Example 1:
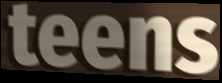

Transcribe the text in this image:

teens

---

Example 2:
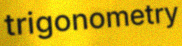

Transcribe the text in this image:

trigonometry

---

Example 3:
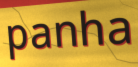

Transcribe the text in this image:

panha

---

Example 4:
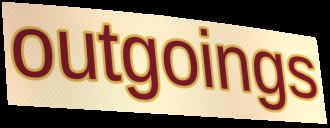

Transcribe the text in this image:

outgoings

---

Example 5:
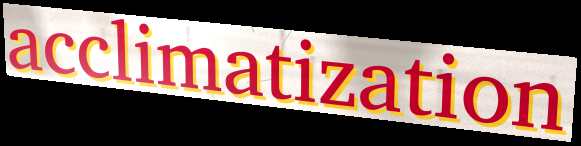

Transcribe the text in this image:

acclimatization